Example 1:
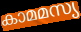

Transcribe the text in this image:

കാമമസ്യ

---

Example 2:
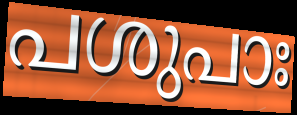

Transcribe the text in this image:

പശുപാഃ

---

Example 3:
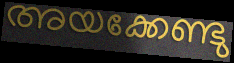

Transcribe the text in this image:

അയക്കേണ്ടു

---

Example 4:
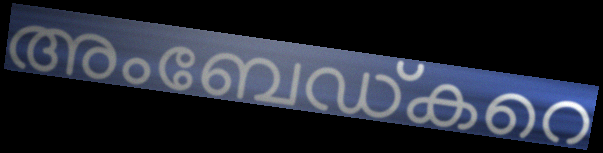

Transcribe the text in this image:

അംബേഡ്കറെ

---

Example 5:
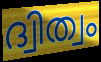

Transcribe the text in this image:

ദ്വിത്വം